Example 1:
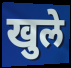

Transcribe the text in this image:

खुले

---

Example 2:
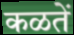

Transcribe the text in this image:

कळतें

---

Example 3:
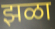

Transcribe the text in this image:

झळा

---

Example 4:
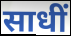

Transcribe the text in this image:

साधीं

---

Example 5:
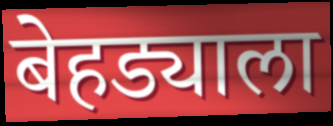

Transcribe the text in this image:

बेहड्याला